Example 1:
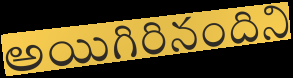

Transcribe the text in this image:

అయిగిరినందిని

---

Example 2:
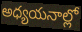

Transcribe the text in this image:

అధ్యయనాల్లో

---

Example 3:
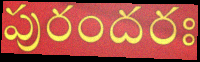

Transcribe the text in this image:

పురందరః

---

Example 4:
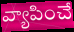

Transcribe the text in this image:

వ్యాపించే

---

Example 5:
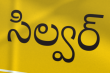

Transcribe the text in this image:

సిల్వర్